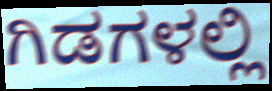
ಗಿಡಗಳಲ್ಲಿ